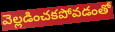
వెల్లడించకపోవడంతో